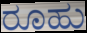
ರೂಹು